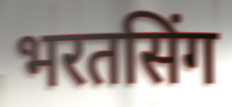
भरतसिंग